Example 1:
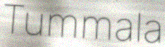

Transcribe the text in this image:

Tummala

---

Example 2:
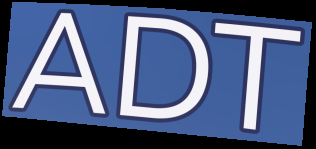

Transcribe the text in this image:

ADT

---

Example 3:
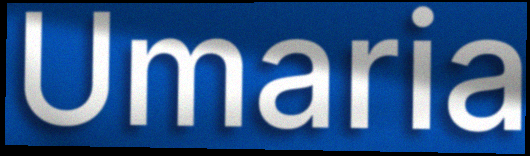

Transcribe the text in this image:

Umaria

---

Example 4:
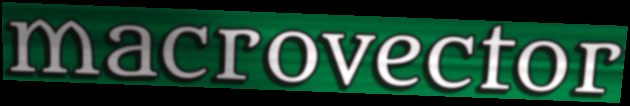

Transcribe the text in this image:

macrovector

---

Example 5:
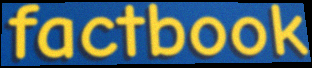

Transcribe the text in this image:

factbook